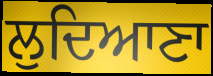
ਲੁਦਿਆਣਾ